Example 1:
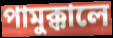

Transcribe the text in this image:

পামুক্কালে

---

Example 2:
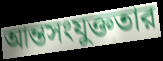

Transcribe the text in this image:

আন্তসংযুক্ততার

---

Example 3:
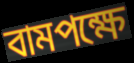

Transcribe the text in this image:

বামপক্ষে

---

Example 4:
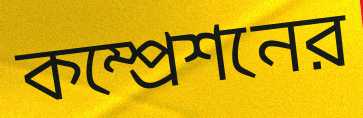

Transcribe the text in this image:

কম্প্রেশনের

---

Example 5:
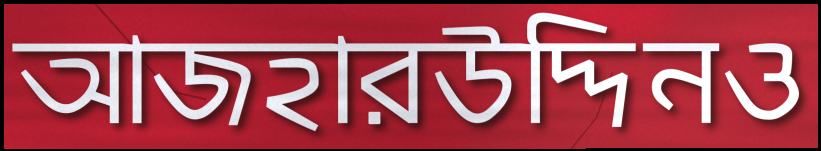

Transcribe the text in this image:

আজহারউদ্দিনও